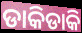
ଡାକିଡାକି